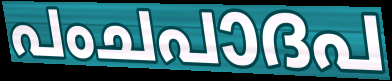
പംചപാദപ